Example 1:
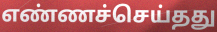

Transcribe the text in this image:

எண்ணச்செய்தது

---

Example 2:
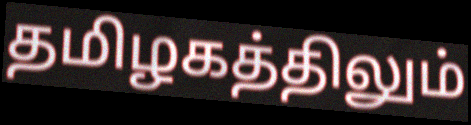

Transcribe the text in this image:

தமிழகத்திலும்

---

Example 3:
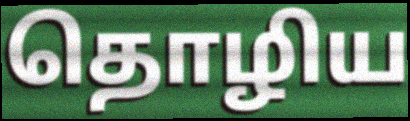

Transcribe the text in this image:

தொழிய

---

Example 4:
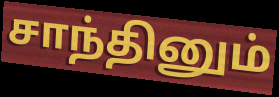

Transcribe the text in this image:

சாந்தினும்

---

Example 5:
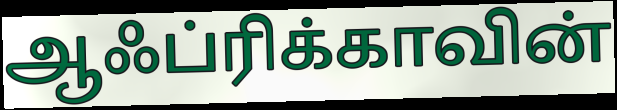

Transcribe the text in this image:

ஆஃப்ரிக்காவின்